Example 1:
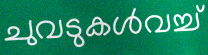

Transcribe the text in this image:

ചുവടുകൾവച്ച്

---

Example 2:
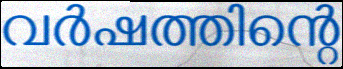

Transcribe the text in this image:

വർഷത്തിന്റെ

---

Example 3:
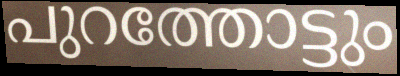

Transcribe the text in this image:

പുറത്തോട്ടും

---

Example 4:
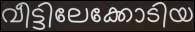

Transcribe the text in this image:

വീട്ടിലേക്കോടിയ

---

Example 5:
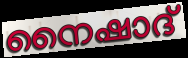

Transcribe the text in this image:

നൈഷാദ്